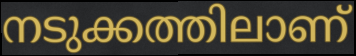
നടുക്കത്തിലാണ്